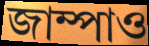
জাম্পাও